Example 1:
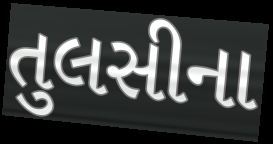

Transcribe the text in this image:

તુલસીના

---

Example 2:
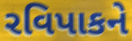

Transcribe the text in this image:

રવિપાકને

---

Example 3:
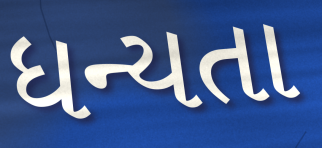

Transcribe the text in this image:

ધન્યતા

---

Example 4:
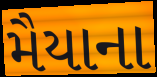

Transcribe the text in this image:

મૈયાના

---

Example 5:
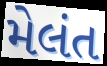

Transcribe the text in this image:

મેલંત